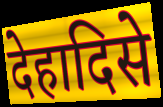
देहादिसे